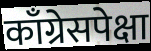
काँग्रेसपेक्षा